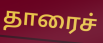
தாரைச்